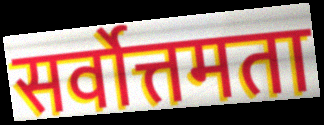
सर्वोत्तमता